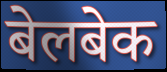
बेलबेक